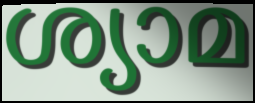
ശ്യാമ